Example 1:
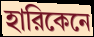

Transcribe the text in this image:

হারিকেনে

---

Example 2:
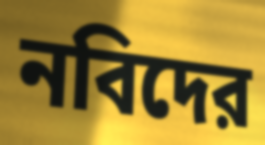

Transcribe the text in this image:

নবিদের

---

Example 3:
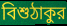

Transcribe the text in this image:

বিশুঠাকুর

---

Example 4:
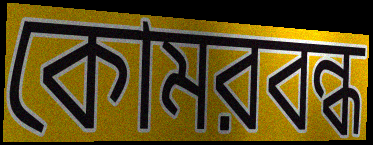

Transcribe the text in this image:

কোমরবন্ধ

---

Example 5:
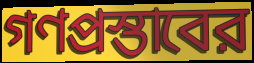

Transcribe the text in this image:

গণপ্রস্তাবের